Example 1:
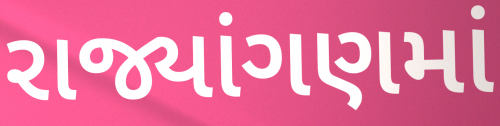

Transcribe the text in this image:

રાજ્યાંગણમાં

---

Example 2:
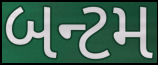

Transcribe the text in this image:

બન્ટમ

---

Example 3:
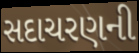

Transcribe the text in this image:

સદાચરણની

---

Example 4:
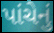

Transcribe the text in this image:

પાંચેનું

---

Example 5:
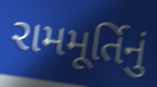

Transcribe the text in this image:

રામમૂર્તિનું